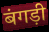
बंगड़ी